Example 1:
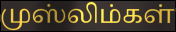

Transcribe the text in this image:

முஸ்லிம்கள்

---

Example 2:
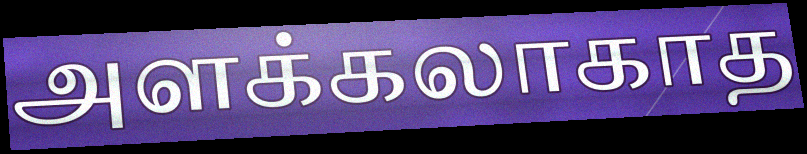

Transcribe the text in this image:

அளக்கலாகாத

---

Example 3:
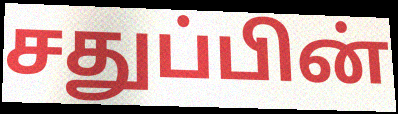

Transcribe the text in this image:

சதுப்பின்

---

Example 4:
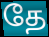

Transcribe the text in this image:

தே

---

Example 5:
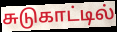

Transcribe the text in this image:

சுடுகாட்டில்